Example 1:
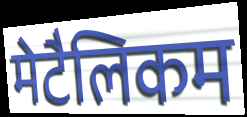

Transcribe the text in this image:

मेटैलिकम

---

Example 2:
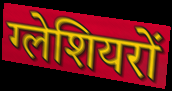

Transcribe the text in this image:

ग्‍लेशियरों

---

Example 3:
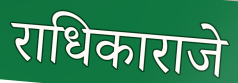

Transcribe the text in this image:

राधिकाराजे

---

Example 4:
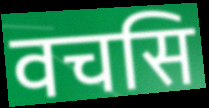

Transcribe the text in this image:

वचसि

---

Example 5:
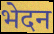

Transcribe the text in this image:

भेदन